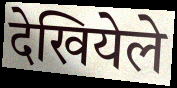
देखियेले